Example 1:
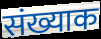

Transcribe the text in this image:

संख्याक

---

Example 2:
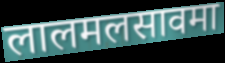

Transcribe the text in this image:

लालमलसावमा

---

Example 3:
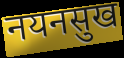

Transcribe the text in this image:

नयनसुख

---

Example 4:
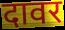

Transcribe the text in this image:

दावर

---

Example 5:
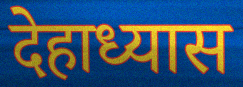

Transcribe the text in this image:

देहाध्यास